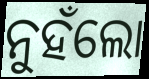
ନୁହଁଲୋ